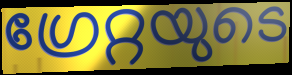
ഗ്രേറ്റയുടെ